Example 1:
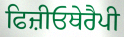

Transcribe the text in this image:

ਫਿਜ਼ੀਓਥੇਰੈਪੀ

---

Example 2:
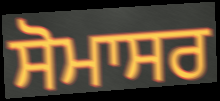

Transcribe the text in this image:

ਸੋਮਾਸਰ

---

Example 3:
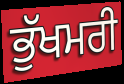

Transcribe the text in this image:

ਭੁੱਖਮਰੀ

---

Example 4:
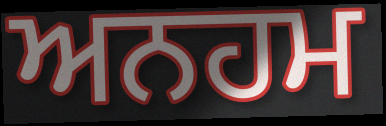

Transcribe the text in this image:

ਅਨਹਮ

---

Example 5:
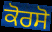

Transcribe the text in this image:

ਕੋਰਸੋ